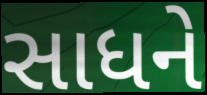
સાધને